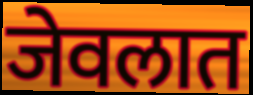
जेवलात